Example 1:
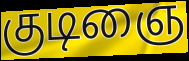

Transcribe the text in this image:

குடிஞை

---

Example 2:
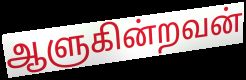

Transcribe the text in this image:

ஆளுகின்றவன்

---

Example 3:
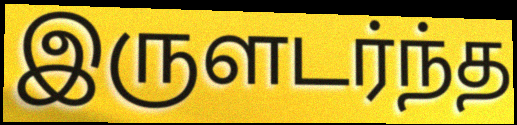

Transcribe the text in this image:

இருளடர்ந்த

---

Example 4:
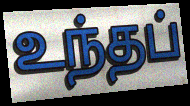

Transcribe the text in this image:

உந்தப்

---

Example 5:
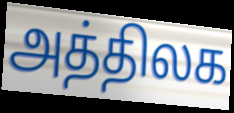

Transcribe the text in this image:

அத்திலக